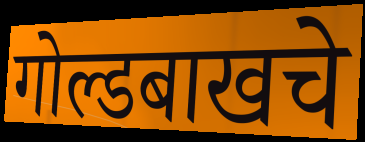
गोल्डबाखचे